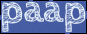
paap